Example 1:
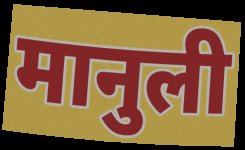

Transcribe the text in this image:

मानुली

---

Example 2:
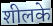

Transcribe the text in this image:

शीलके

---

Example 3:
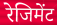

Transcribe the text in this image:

रेजिमेंट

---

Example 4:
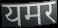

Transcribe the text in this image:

यमर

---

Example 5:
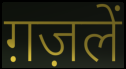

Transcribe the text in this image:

ग़ज़लें